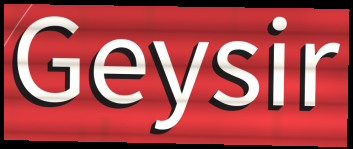
Geysir